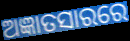
ଅଜ୍ଞାତସାରରେ